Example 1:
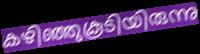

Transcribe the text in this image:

കഴിഞ്ഞുകൂടിയിരുന്നു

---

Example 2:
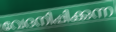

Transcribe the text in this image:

വേദനിപ്പിക്കുന്ന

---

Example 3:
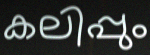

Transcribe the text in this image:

കലിപ്പും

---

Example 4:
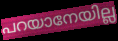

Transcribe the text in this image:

പറയാനേയില്ല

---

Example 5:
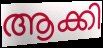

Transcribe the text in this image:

ആക്കി